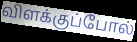
விளக்குப்போல்